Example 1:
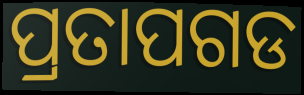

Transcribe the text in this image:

ପ୍ରତାପଗଡ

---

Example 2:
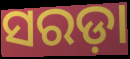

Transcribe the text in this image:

ସରଡ଼ା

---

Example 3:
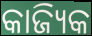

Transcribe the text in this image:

କାଜ୍ୟିକ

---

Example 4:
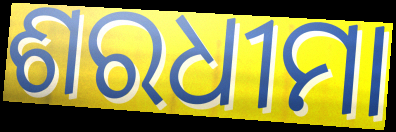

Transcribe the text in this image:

ଶରଧୀମା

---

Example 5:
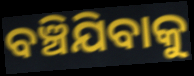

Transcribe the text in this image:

ବଞ୍ଚିଯିବାକୁ